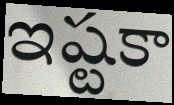
ఇష్టకా